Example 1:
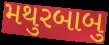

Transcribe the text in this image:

મથુરબાબુ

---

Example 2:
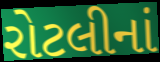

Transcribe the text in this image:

રોટલીનાં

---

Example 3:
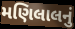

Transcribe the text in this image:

મણિલાલનું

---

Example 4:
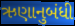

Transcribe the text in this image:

ઋણાનુબંધી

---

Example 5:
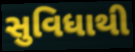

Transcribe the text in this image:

સુવિધાથી